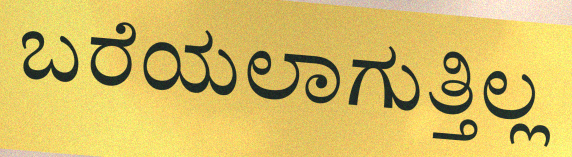
ಬರೆಯಲಾಗುತ್ತಿಲ್ಲ